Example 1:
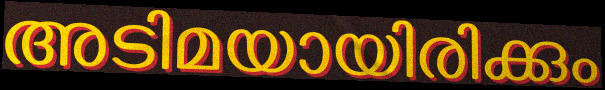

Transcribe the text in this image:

അടിമയായിരിക്കും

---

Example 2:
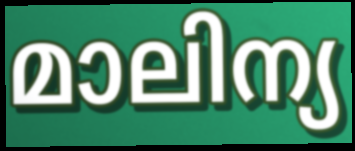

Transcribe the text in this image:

മാലിന്യ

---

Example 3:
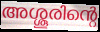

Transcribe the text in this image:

അശ്ശൂരിന്റെ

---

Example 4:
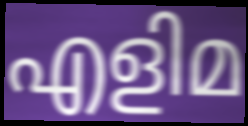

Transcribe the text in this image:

എളിമ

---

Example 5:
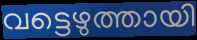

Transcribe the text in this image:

വട്ടെഴുത്തായി